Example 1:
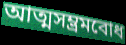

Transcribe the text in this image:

আত্মসম্ভ্রমবোধ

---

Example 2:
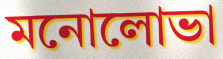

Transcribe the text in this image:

মনোলোভা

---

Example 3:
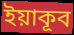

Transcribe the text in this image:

ইয়াকূব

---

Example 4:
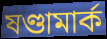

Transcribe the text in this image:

ষণ্ডামার্ক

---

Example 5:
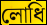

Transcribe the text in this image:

লোধি